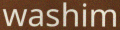
washim